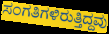
ಸಂಗತಿಗಳಿರುತ್ತಿದ್ದವು